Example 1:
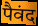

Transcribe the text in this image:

पैवंद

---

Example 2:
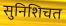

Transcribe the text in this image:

सुनिशिचत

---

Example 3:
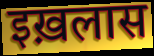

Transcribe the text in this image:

इख़लास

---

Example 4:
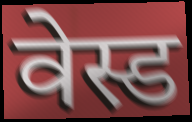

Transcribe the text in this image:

वेस्ड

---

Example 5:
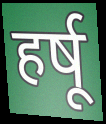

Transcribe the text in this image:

हर्षू